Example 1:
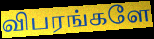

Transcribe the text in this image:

விபரங்களே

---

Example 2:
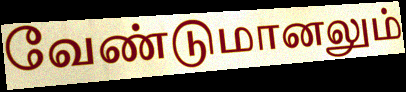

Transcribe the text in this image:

வேண்டுமானலும்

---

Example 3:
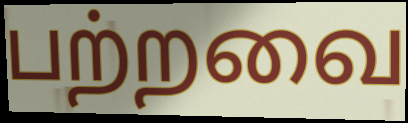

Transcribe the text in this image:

பற்றவை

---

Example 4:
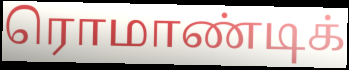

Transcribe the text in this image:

ரொமாண்டிக்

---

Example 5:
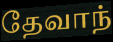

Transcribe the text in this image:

தேவாந்